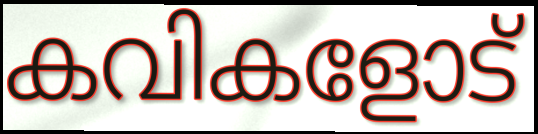
കവികളോട്